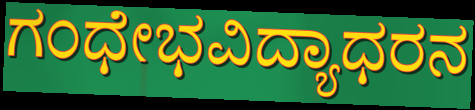
ಗಂಧೇಭವಿದ್ಯಾಧರನ